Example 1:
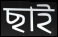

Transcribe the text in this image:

ছাই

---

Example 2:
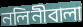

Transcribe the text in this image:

নলিনীবালা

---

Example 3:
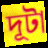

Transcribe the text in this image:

দূটা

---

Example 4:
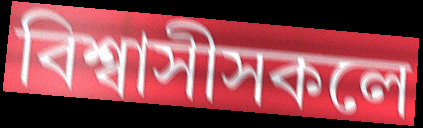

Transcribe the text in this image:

বিশ্বাসীসকলে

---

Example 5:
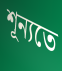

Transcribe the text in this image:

শূন্যতে